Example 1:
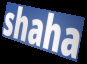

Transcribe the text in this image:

shaha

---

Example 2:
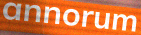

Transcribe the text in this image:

annorum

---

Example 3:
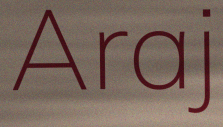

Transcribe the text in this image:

Araj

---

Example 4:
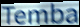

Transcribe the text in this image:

Temba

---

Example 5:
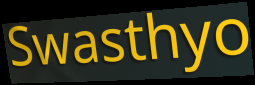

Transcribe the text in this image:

Swasthyo